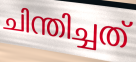
ചിന്തിച്ചത്